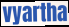
vyartha